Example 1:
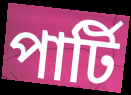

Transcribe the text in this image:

পাৰ্টি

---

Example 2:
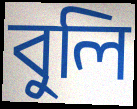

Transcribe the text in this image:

বুলি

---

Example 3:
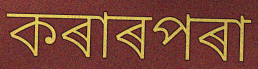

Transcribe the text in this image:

কৰাৰপৰা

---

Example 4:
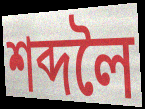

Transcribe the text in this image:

শব্দলৈ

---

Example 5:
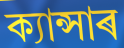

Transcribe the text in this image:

ক্যান্সাৰ